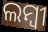
ଲମ୍ବୀ